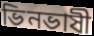
ভিনভাষী